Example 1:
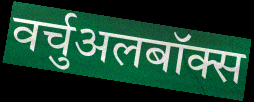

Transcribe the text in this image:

वर्चुअलबॉक्स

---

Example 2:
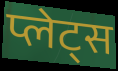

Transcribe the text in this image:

प्‍लेट्स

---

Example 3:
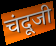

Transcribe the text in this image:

चंदूजी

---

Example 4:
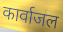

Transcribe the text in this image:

कार्वाजल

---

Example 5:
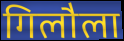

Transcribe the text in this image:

गिलौला